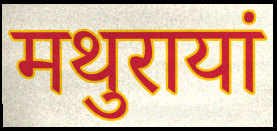
मथुरायां